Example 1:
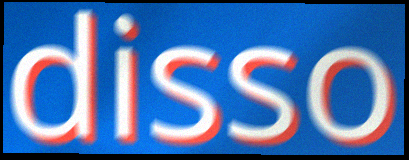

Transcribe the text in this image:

disso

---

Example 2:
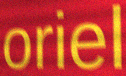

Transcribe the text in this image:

oriel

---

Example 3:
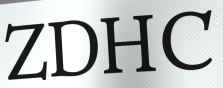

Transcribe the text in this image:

ZDHC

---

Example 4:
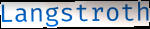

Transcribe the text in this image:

Langstroth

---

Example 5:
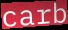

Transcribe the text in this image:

carb